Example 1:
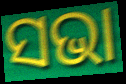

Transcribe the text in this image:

ସଭା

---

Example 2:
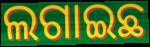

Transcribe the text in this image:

ଲଗାଇଛ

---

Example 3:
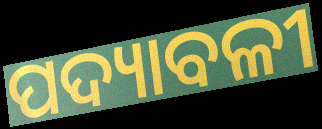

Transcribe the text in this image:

ପଦ୍ୟାବଳୀ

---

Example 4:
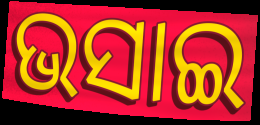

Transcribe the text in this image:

ଭସାଇ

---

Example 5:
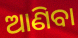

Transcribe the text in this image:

ଆଣିବା